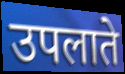
उपलाते